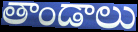
తాండాలు